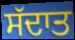
ਸੱਦਾਤ